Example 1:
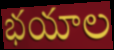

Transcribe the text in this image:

భయాల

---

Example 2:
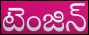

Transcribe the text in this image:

టెంజిన్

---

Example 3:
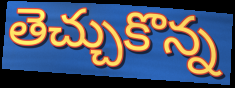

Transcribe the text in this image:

తెచ్చుకొన్న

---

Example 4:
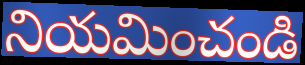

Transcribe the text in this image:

నియమించండి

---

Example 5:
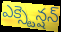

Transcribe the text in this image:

ఎక్స్టెన్షన్